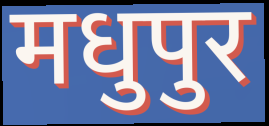
मधुपुर